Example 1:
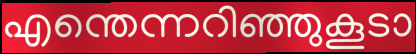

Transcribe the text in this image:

എന്തെന്നറിഞ്ഞുകൂടാ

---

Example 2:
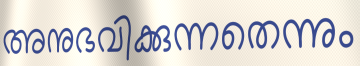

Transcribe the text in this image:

അനുഭവിക്കുന്നതെന്നും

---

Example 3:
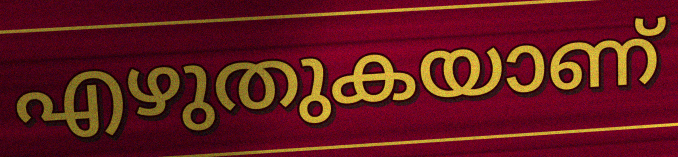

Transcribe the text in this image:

എഴുതുകയാണ്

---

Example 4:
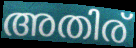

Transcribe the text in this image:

അതിര്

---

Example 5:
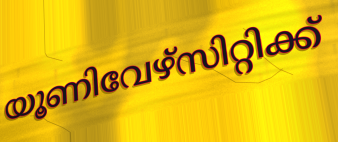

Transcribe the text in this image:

യൂണിവേഴ്സിറ്റിക്ക്